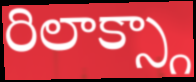
రిలాక్స్గా